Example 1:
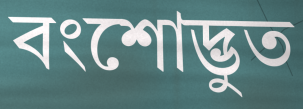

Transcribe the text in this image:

বংশোদ্ভুত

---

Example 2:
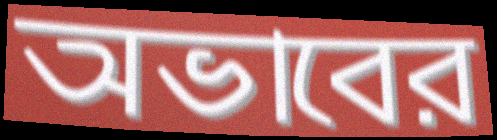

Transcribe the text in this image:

অভাবের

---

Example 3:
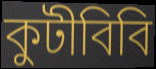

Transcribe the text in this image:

কুটীবিবি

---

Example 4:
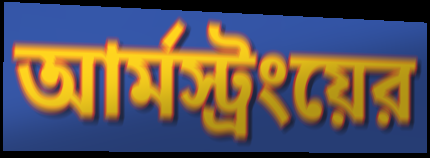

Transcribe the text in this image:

আর্মস্ট্রংয়ের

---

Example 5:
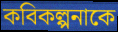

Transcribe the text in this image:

কবিকল্পনাকে